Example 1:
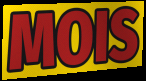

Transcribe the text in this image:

MOIS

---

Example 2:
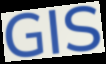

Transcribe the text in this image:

GIS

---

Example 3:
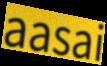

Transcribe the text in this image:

aasai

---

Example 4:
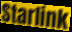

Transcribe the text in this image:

Starlink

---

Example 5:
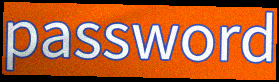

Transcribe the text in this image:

password